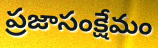
ప్రజాసంక్షేమం